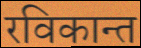
रविकान्त